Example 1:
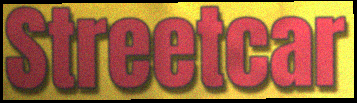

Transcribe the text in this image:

Streetcar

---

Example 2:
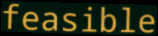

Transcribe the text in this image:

feasible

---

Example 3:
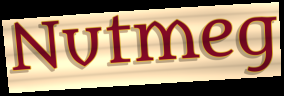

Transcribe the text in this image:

Nutmeg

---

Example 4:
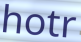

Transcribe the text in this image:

hotr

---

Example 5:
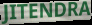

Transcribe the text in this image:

JITENDRA